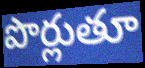
పొర్లుతూ